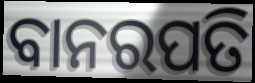
ବାନରପତି